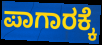
ಪಾಗಾರಕ್ಕೆ